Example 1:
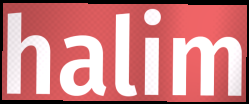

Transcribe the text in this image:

halim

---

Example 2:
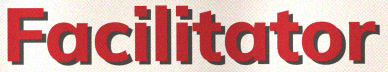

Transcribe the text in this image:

Facilitator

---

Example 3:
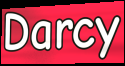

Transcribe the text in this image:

Darcy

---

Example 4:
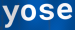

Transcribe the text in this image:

yose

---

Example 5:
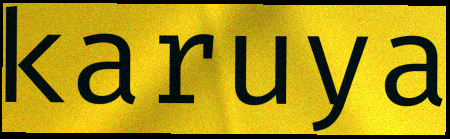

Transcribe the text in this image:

karuya